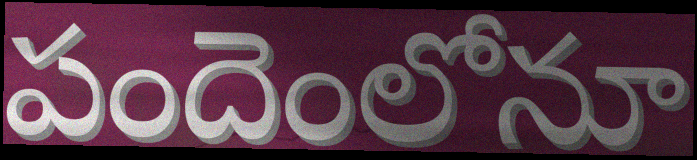
పందెంలోనూ